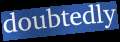
doubtedly